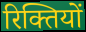
रिक्तियों